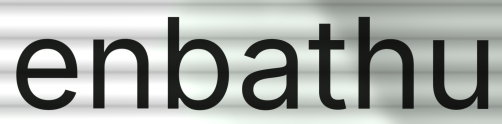
enbathu